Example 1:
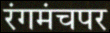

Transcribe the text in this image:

रंगमंचपर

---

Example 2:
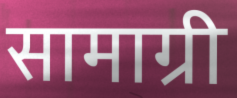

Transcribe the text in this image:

सामाग्री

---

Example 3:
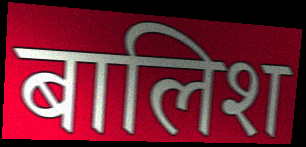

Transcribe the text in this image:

बालिश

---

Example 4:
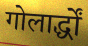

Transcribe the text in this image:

गोलार्द्धों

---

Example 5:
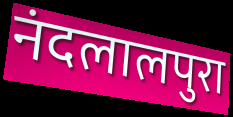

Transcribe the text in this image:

नंदलालपुरा